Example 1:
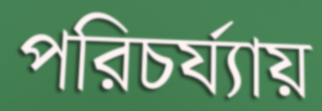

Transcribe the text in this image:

পরিচর্য্যায়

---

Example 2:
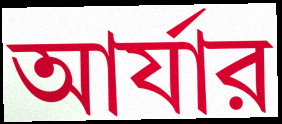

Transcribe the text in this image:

আর্যার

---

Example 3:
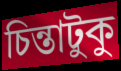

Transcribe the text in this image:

চিন্তাটুকু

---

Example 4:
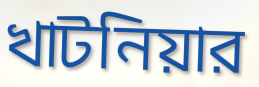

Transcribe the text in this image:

খাটনিয়ার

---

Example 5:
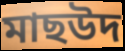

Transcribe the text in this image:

মাছউদ